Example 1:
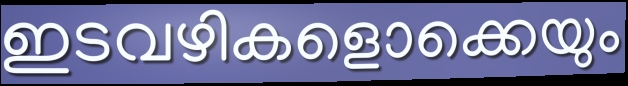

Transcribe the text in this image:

ഇടവഴികളൊക്കെയും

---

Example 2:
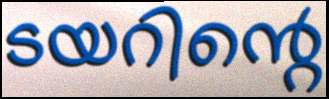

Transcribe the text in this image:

ടയറിന്റെ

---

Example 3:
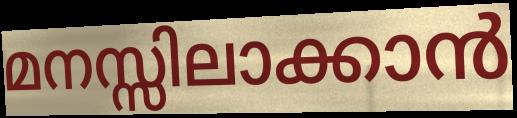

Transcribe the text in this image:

മനസ്സിലാക്കാൻ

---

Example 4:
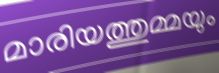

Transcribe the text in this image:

മാരിയത്തുമ്മയും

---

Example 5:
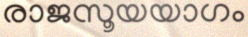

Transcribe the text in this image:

രാജസൂയയാഗം